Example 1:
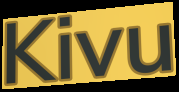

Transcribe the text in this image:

Kivu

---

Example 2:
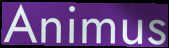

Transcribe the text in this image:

Animus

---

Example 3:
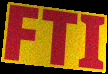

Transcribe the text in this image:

FTI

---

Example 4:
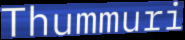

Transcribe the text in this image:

Thummuri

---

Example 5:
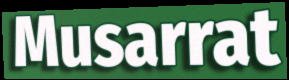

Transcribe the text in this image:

Musarrat